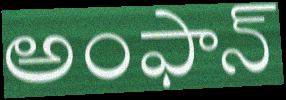
అంఫాన్